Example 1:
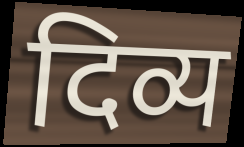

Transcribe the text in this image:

दिव्य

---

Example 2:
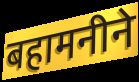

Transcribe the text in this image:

बहामनीने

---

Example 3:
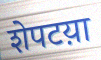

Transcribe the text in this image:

शेपटय़ा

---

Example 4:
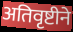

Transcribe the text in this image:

अतिवृष्टीने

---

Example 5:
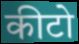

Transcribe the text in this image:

कीटो